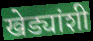
खेड्यांशी